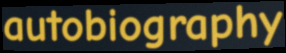
autobiography